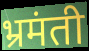
भ्रमंती